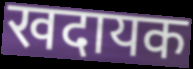
खदायक